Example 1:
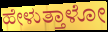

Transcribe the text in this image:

ಹೇಳುತ್ತಾಳೋ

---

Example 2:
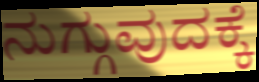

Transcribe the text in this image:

ನುಗ್ಗುವುದಕ್ಕೆ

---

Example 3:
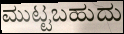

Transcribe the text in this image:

ಮುಟ್ಟಬಹುದು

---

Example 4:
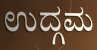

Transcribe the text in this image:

ಉದ್ಗಮ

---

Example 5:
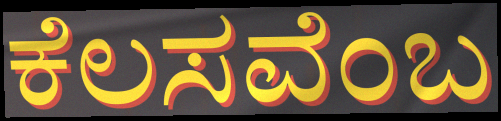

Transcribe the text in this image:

ಕೆಲಸವೆಂಬ